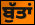
ਬੁੱਤਾਂ